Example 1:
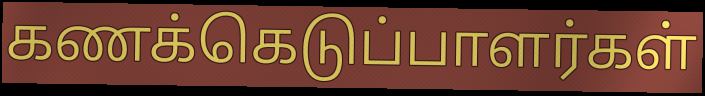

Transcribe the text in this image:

கணக்கெடுப்பாளர்கள்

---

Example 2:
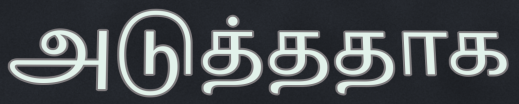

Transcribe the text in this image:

அடுத்ததாக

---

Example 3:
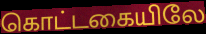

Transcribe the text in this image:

கொட்டகையிலே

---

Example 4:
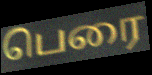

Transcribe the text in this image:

பெரை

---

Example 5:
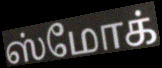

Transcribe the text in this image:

ஸ்மோக்